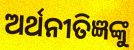
ଅର୍ଥନୀତିଜ୍ଞଙ୍କୁ